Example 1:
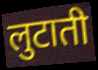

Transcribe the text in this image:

लुटाती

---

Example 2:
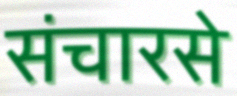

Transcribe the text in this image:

संचारसे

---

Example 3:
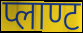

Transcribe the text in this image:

प्लाण्ट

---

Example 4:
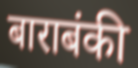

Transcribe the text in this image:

बाराबंकी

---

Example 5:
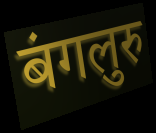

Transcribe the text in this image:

बंगलुरु